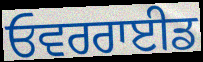
ਓਵਰਰਾਈਡ